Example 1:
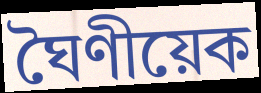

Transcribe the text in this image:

ঘৈণীয়েক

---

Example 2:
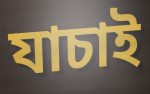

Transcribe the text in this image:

যাচাই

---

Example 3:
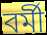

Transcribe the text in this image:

বৰ্মী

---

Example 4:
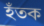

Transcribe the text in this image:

হঁতক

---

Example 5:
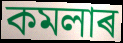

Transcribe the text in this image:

কমলাৰ